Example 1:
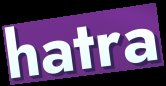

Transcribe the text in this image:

hatra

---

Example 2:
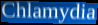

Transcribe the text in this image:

Chlamydia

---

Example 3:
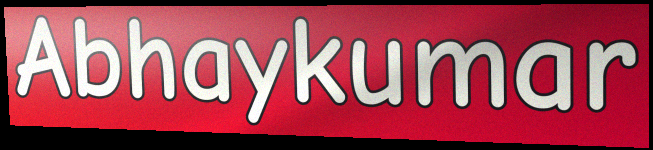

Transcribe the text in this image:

Abhaykumar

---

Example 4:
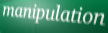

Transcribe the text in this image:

manipulation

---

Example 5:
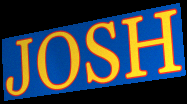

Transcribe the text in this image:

JOSH